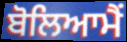
ਬੋਲਿਆਮੈਂ